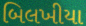
બિલખીયા